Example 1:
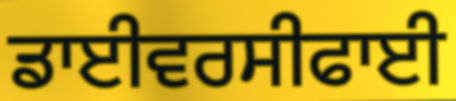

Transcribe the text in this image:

ਡਾਈਵਰਸੀਫਾਈ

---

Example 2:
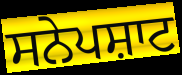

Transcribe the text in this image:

ਸਨੇਪਸ਼ਾਟ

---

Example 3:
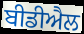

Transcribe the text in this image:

ਬੀਡੀਐਲ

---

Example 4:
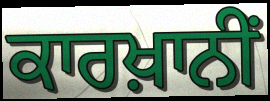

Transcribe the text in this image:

ਕਾਰਖ਼ਾਨੀਂ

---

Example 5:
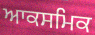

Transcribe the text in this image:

ਆਕਸਮਿਕ